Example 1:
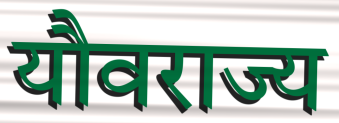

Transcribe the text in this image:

यौवराज्य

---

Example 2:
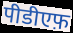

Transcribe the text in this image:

पीडीएफ़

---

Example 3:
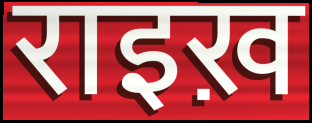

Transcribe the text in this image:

राइख़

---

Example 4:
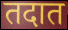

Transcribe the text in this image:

तदात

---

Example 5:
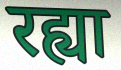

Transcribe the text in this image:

रह्या